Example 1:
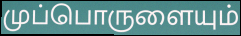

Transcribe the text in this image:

முப்பொருளையும்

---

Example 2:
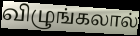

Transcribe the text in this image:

விழுங்கலால்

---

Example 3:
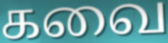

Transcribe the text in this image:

கவை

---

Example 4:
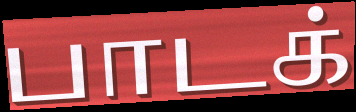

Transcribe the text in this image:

பாடக்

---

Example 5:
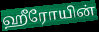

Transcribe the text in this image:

ஹீரோயின்